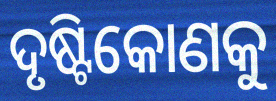
ଦୃଷ୍ଟିକୋଣକୁ